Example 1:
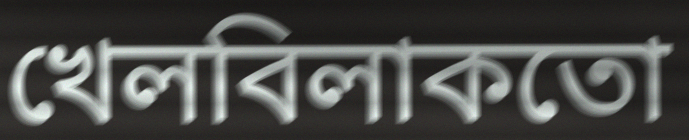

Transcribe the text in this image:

খেলবিলাকতো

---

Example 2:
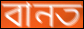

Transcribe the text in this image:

বানত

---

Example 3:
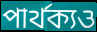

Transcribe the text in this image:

পাৰ্থক্যও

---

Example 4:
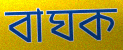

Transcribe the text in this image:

বাঘক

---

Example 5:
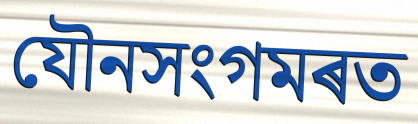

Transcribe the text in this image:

যৌনসংগমৰত